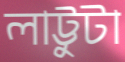
লাট্টুটা